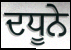
ਦਧੂਨੇ